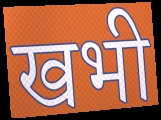
खभी